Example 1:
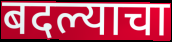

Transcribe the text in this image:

बदल्याचा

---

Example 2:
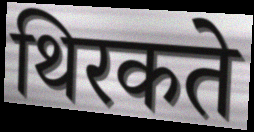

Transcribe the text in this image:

थिरकते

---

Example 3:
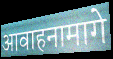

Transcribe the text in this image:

आवाहनामागे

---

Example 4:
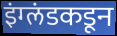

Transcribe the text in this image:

इंग्लंडकडून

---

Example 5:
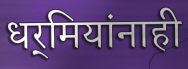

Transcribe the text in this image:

धर्मियांनाही